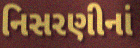
નિસરણીનાં